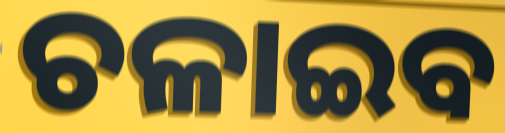
ଚଳାଇବ